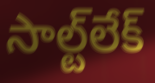
సాల్ట్‌లేక్